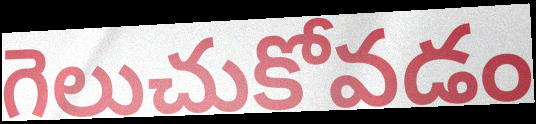
గెలుచుకోవడం